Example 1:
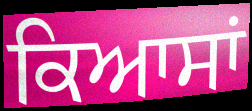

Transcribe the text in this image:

ਕਿਆਸਾਂ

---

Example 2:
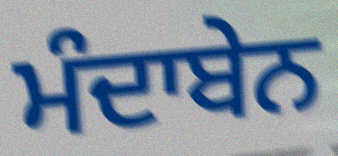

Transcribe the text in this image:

ਮੰਦਾਬੇਨ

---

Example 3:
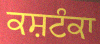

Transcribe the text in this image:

ਕਸ਼ਟੰਕਾ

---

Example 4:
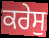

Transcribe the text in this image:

ਕਰੇਸੁ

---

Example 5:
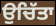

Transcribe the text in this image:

ਉਚਿੱਤਾ